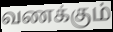
வணக்கும்